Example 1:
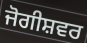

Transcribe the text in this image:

ਜੋਗੀਸ਼ਵਰ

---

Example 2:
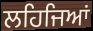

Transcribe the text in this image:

ਲਹਿਜਿਆਂ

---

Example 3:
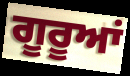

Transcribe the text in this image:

ਗੂਰੂਆਂ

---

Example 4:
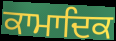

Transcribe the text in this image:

ਕਾਮਾਦਿਕ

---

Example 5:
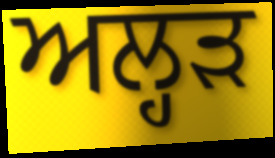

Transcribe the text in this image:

ਅਲ੍ਹੜ